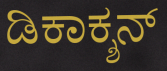
ಡಿಕಾಕ್ಶನ್